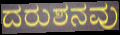
ದರುಶನವು